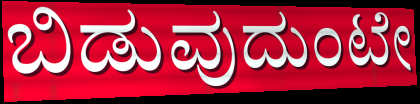
ಬಿಡುವುದುಂಟೇ